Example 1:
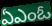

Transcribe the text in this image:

ఏఎంఓ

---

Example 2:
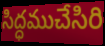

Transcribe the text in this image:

సిద్ధముచేసిరి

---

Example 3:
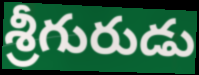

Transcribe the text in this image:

శ్రీగురుడు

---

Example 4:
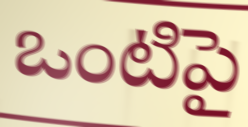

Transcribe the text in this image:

ఒంటిపై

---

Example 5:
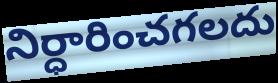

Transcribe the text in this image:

నిర్ధారించగలదు